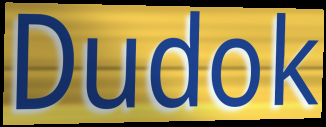
Dudok